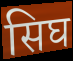
सिघ